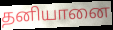
தனியானை